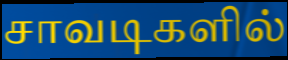
சாவடிகளில்